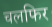
चलफिर